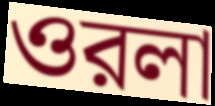
ওরলা